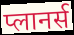
प्लानर्स